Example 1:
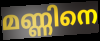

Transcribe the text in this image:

മണ്ണിനെ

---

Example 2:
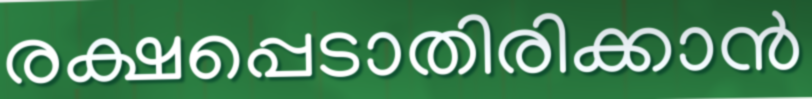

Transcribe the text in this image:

രക്ഷപ്പെടാതിരിക്കാൻ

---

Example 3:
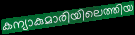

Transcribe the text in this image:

കന്യാകുമാരിയിലെത്തിയ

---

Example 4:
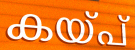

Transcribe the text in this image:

കയ്പ്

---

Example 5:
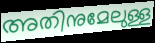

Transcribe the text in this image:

അതിനുമേലുള്ള